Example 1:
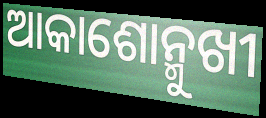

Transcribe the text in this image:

ଆକାଶୋନ୍ମୁଖୀ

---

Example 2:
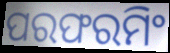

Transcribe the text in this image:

ପରଫରମିଂ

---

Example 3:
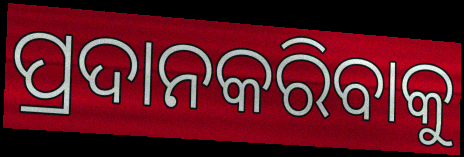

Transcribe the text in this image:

ପ୍ରଦାନକରିବାକୁ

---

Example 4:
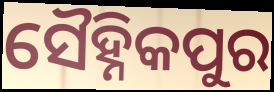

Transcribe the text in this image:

ସୈହ୍ନିକପୁର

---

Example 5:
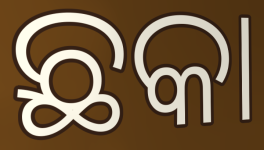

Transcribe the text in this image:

ଛକା